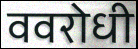
ववरोधी